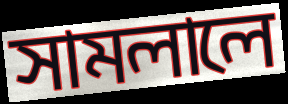
সামলালে